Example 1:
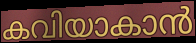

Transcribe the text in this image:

കവിയാകാൻ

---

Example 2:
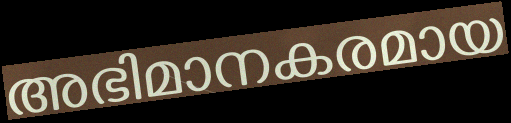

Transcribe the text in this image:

അഭിമാനകരമായ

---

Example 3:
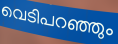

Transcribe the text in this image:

വെടിപറഞ്ഞും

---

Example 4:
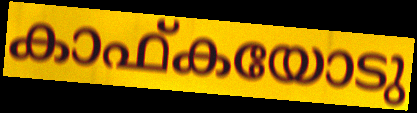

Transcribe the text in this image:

കാഫ്കയോടു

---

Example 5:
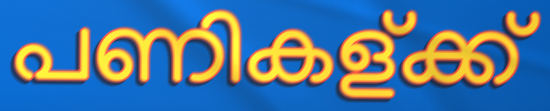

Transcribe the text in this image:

പണികള്ക്ക്